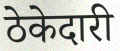
ठेकेदारी